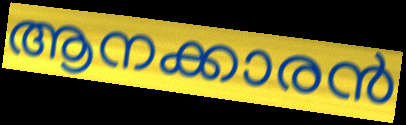
ആനക്കാരൻ